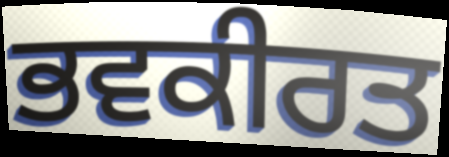
ਭਵਕੀਰਤ